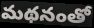
మథనంతో